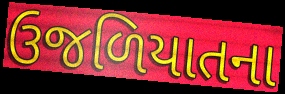
ઉજળિયાતના